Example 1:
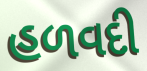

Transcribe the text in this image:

હળવદી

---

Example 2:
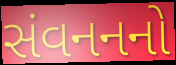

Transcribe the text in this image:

સંવનનનો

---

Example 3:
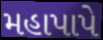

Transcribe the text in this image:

મહાપાપે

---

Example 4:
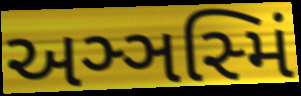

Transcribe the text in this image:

અઞ્ઞસ્મિં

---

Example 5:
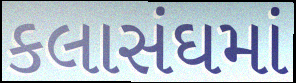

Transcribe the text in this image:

કલાસંઘમાં